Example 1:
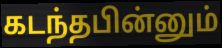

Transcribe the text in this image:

கடந்தபின்னும்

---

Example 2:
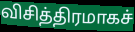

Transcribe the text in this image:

விசித்திரமாகச்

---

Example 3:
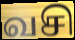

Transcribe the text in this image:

வசி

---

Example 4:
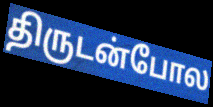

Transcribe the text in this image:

திருடன்போல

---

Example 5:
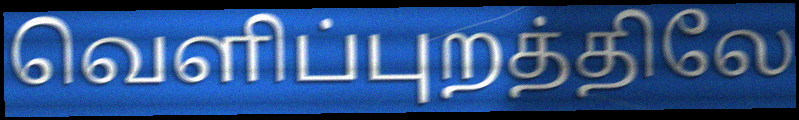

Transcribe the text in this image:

வெளிப்புறத்திலே